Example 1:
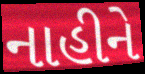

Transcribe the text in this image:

નાહીને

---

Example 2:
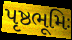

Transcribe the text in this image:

પૃષ્ઠભૂમિઃ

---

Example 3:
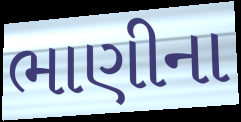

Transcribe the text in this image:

ભાણીના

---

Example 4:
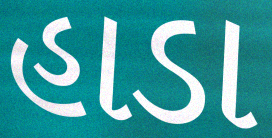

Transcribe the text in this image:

હાડા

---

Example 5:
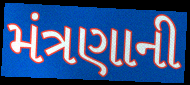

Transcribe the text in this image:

મંત્રણાની